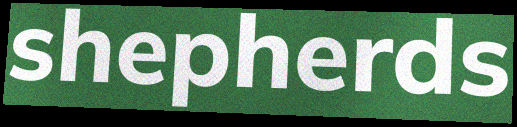
shepherds